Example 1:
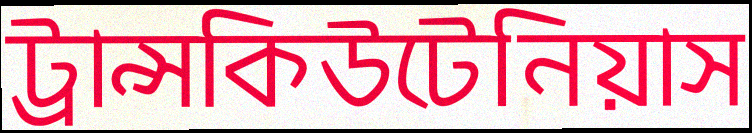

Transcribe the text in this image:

ট্রান্সকিউটেনিয়াস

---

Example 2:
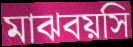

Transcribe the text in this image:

মাঝবয়সি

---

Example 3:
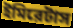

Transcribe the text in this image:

ইমিরেটাস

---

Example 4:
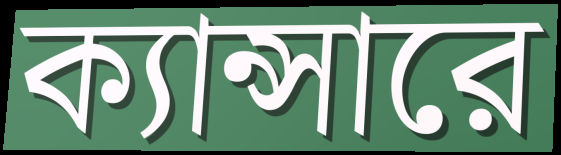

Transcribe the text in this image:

ক্যান্সারে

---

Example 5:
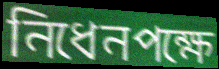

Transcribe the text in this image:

নিধেনপক্ষে